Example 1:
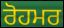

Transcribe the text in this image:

ਰੋਹਮਰ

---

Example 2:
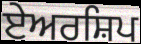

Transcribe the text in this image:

ਏਅਰਸ਼ਿਪ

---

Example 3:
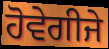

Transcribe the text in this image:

ਹੋਵੇਗੀਜੇ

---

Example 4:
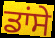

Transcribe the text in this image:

ਡਾਂਸੇ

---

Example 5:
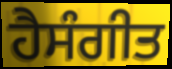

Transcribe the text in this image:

ਹੈਸੰਗੀਤ